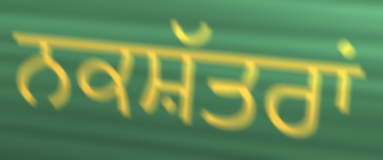
ਨਕਸ਼ੱਤਰਾਂ